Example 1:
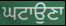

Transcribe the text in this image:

ਘਟਾਉਣਾ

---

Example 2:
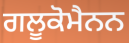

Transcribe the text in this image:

ਗਲੂਕੋਮੈਨਨ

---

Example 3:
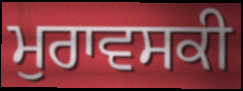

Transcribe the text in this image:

ਮੁਰਾਵਸਕੀ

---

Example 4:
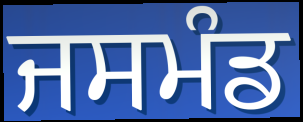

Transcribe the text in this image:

ਜਸਮੰਡ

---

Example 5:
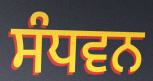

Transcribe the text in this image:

ਸੰਧਵਨ